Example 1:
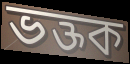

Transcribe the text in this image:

ভক্তক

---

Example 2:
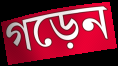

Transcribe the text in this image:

গড়েন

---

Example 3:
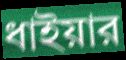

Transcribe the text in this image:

ধাইয়ার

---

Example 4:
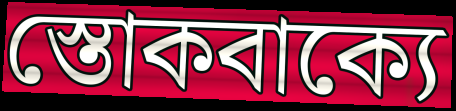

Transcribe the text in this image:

স্তোকবাক্যে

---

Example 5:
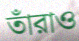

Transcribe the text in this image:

তাঁরাও